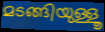
മടങ്ങിയുള്ളൂ